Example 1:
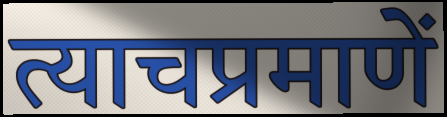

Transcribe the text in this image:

त्याचप्रमाणें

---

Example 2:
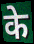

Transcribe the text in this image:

के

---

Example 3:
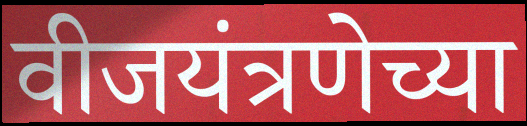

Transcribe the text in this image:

वीजयंत्रणेच्या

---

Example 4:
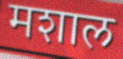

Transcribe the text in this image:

मशाल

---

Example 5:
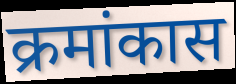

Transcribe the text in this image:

क्रमांकास